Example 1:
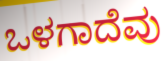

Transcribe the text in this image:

ಒಳಗಾದೆವು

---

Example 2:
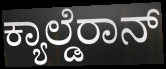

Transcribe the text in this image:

ಕ್ಯಾಲ್ಡೆರಾನ್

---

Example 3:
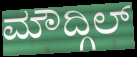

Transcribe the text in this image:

ಮೌದ್ಗಿಲ್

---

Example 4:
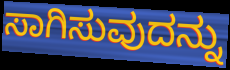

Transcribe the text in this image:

ಸಾಗಿಸುವುದನ್ನು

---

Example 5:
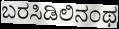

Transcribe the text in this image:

ಬರಸಿಡಿಲಿನಂಥ